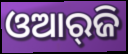
ଓଆର୍‌ଜି